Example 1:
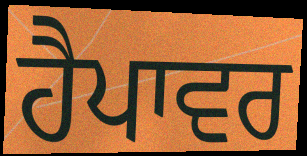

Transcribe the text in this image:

ਹੈਪਾਵਰ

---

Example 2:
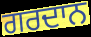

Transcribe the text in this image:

ਗਰਦਾਨ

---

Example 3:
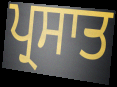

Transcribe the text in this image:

ਪ੍ਰਸਾਤ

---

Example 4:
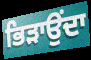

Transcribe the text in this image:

ਭਿੜਾਉਂਦਾ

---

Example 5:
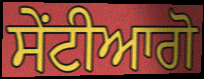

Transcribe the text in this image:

ਸੇਂਟੀਆਗੋ